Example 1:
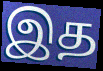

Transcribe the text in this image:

இத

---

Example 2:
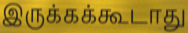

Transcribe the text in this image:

இருக்கக்கூடாது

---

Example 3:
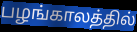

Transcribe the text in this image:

பழங்காலத்தில்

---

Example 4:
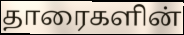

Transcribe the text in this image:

தாரைகளின்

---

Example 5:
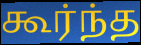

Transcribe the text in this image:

கூர்ந்த